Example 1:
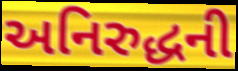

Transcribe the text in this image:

અનિરુદ્ધની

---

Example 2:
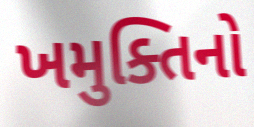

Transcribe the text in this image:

ખમુક્તિનો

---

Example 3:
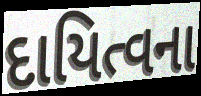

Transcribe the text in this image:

દાયિત્વના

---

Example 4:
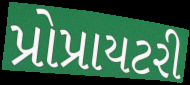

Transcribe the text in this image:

પ્રોપ્રાયટરી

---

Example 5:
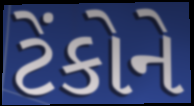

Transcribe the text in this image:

ટેંકોને